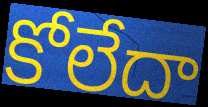
కోలేదా